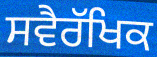
ਸਵੈਰੱਖਿਕ